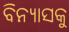
ବିନ୍ୟାସକୁ